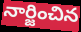
నార్జించిన